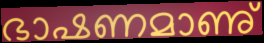
ഭാഷണമാണു്